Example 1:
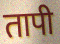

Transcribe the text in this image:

तापी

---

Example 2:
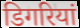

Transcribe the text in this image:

डिगरियां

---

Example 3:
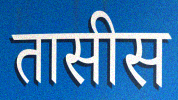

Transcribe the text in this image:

तासीस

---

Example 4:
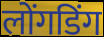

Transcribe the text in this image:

लोंगडिंग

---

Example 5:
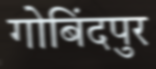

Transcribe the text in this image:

गोबिंदपुर